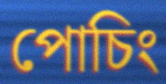
পোচিং